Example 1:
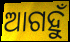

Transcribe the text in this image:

ଆଗହୁଁ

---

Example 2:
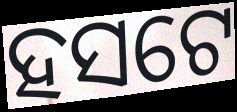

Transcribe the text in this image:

ହସଟେ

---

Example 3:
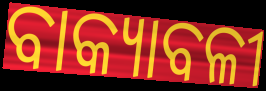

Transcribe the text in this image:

ବାକ୍ୟାବଳୀ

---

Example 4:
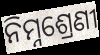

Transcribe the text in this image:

ନିମ୍ନଶ୍ରେଣୀ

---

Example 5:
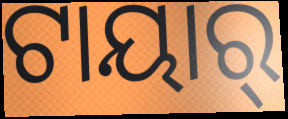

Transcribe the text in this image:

ଟାୟାର୍